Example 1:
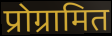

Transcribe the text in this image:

प्रोग्रामित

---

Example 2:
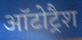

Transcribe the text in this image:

ऑटोट्रैश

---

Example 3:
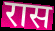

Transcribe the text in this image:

रास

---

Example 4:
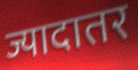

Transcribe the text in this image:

ज्‍यादातर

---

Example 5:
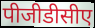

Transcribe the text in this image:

पीजीडीसीए